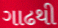
ગાઢથી